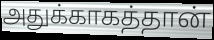
அதுக்காகத்தான்